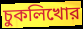
চুকলিখোর